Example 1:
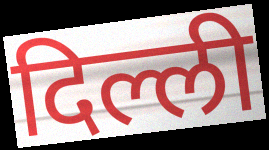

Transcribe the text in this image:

दिल्ली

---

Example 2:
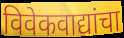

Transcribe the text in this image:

विवेकवाद्यांचा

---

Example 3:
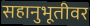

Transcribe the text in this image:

सहानुभूतीवर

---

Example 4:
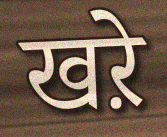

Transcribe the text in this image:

खऱे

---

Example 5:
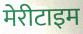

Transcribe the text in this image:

मेरीटाइम